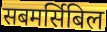
सबमर्सिबिल